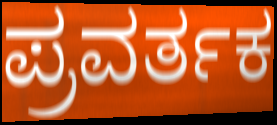
ಪ್ರವರ್ತಕ